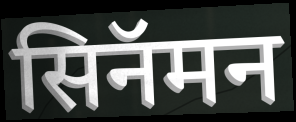
सिनॅमन